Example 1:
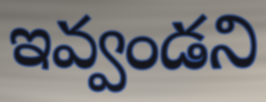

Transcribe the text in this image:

ఇవ్వండని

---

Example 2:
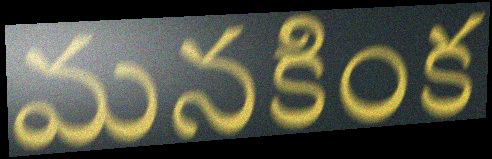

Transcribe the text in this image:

మనకింక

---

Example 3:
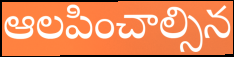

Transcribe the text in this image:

ఆలపించాల్సిన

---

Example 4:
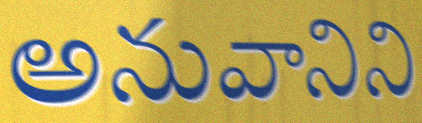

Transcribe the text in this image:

అనువానిని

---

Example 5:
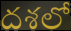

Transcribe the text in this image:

దశలో